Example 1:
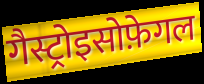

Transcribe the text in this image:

गैस्ट्रोइसोफ़ेगल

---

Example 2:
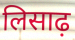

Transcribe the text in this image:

लिसाढ़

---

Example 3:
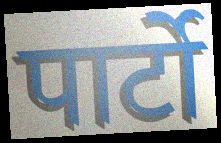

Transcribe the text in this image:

पार्टो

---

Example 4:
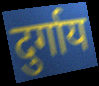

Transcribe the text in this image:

दुर्गाय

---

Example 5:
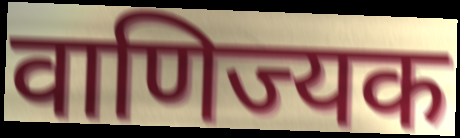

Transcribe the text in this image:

वाणिज्यक